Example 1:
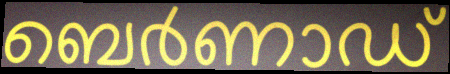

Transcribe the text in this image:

ബെർണാഡ്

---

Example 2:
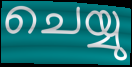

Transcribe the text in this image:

ചെയ്യു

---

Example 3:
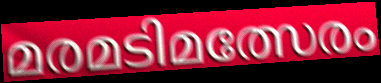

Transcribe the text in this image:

മരമടിമത്സേരം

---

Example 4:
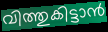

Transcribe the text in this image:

വിത്തുകിട്ടാൻ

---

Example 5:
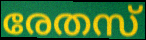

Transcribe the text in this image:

രേതസ്